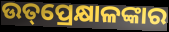
ଉତ୍‌ପ୍ରେକ୍ଷାଳଙ୍କାର